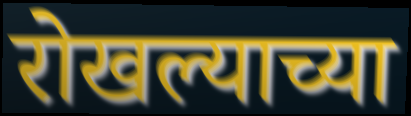
रोखल्याच्या